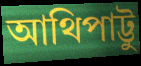
আথিপাট্টু